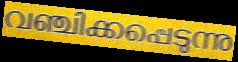
വഞ്ചിക്കപ്പെടുന്നു